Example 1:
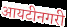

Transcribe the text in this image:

आयटीनगरी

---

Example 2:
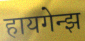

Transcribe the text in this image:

हायगेन्झ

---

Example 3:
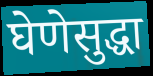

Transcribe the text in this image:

घेणेसुद्धा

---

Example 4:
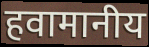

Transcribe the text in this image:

हवामानीय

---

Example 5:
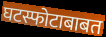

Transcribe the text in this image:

घटस्फोटाबाबत